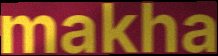
makha